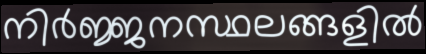
നിർജ്ജനസ്ഥലങ്ങളിൽ